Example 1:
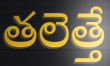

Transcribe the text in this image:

తలెత్తే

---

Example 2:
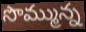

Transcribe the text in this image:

సొమ్మున్న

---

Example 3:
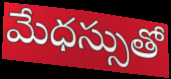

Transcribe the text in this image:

మేధస్సుతో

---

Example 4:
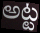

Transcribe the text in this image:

అట్ట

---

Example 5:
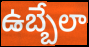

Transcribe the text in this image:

ఉబ్బేలా